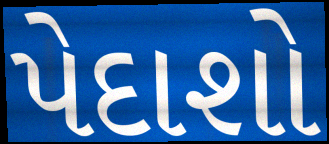
પેદાશો